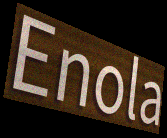
Enola